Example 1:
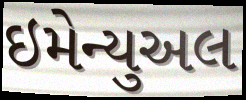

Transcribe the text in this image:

ઇમેન્યુઅલ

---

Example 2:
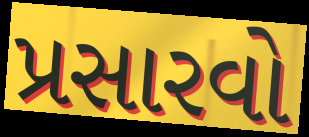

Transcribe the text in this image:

પ્રસારવો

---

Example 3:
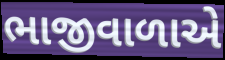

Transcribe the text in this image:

ભાજીવાળાએ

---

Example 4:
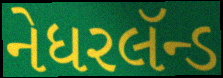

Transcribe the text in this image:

નેધરલૅન્ડ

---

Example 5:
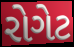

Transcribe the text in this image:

રોગેટ